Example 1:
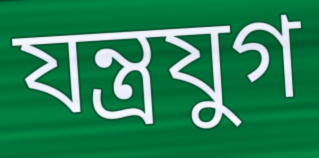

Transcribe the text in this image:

যন্ত্রযুগ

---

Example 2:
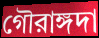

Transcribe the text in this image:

গৌরাঙ্গদা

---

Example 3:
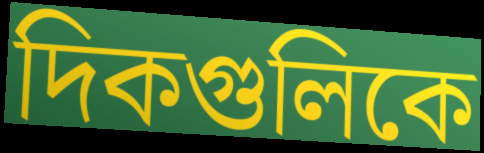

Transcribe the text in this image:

দিকগুলিকে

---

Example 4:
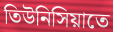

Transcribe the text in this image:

তিউনিসিয়াতে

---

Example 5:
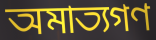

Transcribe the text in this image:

অমাত্যগণ